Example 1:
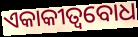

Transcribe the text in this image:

ଏକାକୀତ୍ୱବୋଧ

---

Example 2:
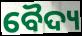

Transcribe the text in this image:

ବୈଦ୍ୟ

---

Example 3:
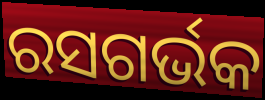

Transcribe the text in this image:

ରସଗର୍ଭକ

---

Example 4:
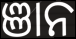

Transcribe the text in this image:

ଞାନ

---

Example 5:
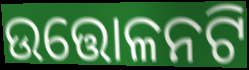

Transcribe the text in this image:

ଉତ୍ତୋଳନଟି